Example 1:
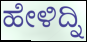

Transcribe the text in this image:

ಹೇಳಿದ್ನಿ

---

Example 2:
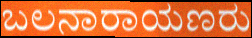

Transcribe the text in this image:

ಬಲನಾರಾಯಣರು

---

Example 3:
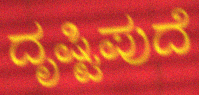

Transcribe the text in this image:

ದೃಷ್ಟಿಪುದೆ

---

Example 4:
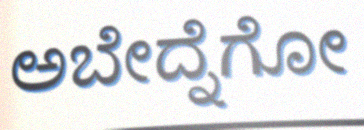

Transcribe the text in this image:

ಅಬೇದ್ನೆಗೋ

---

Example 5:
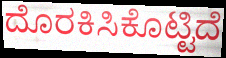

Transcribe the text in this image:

ದೊರಕಿಸಿಕೊಟ್ಟಿದೆ